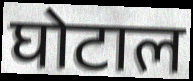
घोटाल